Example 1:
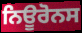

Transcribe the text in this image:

ਨਿਊਰੋਨਸ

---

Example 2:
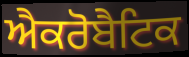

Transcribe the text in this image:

ਐਕਰੋਬੈਟਿਕ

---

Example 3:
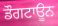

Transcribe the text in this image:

ਡੌਗਟਾਊਨ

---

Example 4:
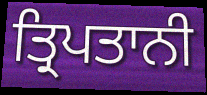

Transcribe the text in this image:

ਤ੍ਰਿਪਤਾਨੀ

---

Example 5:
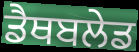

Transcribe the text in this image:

ਡੈਥਬਲੇਡ